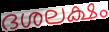
ദശലക്ഷം